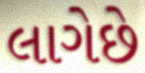
લાગેછે